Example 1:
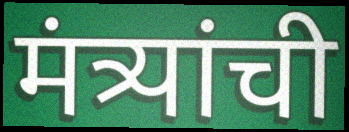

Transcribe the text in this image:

मंत्र्यांची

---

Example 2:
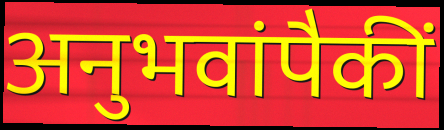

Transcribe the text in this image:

अनुभवांपैकीं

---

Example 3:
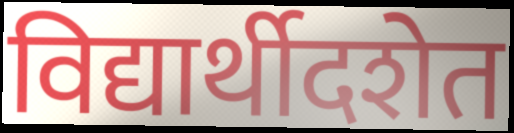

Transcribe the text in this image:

विद्यार्थीदशेत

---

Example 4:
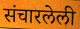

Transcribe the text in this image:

संचारलेली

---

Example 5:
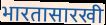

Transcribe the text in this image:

भारतासारखी